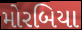
મોરબિયા